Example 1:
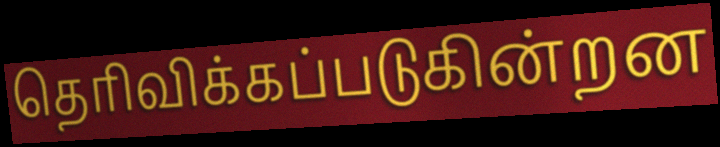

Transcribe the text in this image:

தெரிவிக்கப்படுகின்றன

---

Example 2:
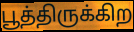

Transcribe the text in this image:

பூத்திருக்கிற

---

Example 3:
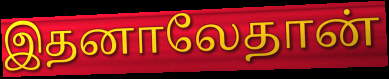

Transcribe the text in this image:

இதனாலேதான்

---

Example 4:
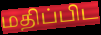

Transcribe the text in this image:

மதிப்பிட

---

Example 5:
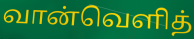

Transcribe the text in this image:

வான்வெளித்